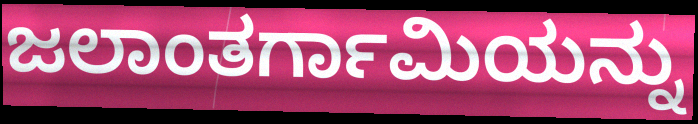
ಜಲಾಂತರ್ಗಾಮಿಯನ್ನು